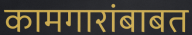
कामगारांबाबत